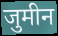
जुमीन